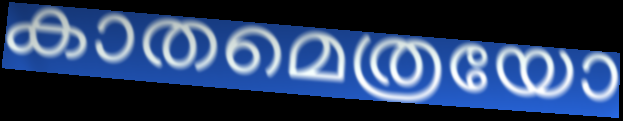
കാതമെത്രയോ